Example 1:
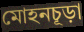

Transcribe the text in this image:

মোহনচূড়া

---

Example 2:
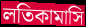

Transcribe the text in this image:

লতিকামাসি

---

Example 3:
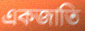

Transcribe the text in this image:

একজাতি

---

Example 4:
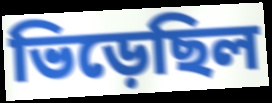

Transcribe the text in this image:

ভিড়েছিল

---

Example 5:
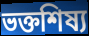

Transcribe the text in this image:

ভক্তশিষ্য